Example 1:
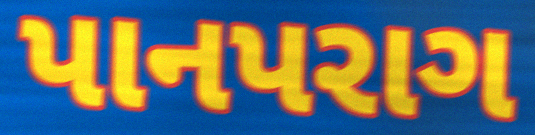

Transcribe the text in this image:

પાનપરાગ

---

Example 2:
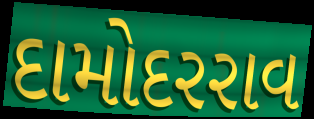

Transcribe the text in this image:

દામોદરરાવ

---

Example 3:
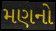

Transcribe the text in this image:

મણનો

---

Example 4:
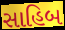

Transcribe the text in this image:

સાહિબ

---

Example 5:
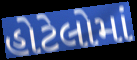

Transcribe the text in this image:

હોટેલોમાં